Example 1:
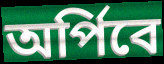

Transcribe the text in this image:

অর্পিবে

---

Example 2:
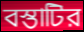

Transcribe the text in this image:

বস্তাটির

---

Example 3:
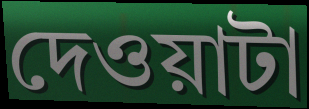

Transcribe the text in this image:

দেওয়াটা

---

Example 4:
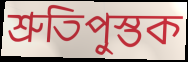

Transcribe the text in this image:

শ্রুতিপুস্তক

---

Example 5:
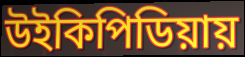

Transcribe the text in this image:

উইকিপিডিয়ায়